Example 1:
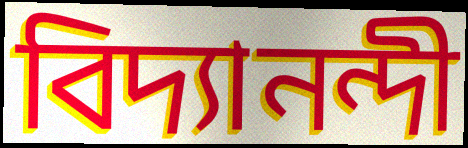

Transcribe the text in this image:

বিদ্যানন্দী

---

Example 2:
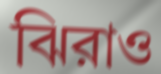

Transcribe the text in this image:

ঝিরাও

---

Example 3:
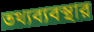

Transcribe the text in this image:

তথ্যব্যবস্থার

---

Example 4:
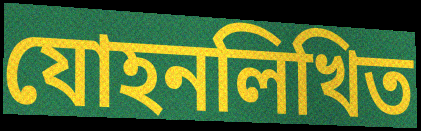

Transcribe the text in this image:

যোহনলিখিত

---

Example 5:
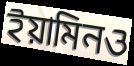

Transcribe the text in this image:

ইয়ামিনও